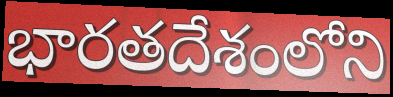
భారతదేశంలోని